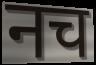
नच